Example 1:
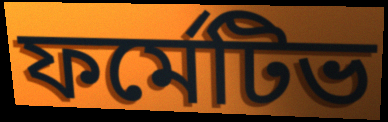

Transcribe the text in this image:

ফর্মেটিভ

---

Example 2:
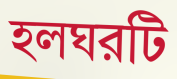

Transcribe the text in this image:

হলঘরটি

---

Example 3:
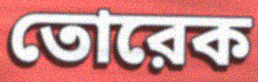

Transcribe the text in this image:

তোরেক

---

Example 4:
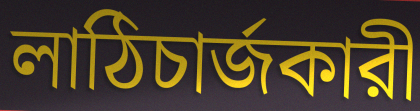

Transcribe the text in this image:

লাঠিচার্জকারী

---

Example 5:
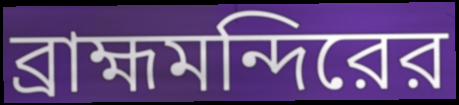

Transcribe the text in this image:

ব্রাহ্মমন্দিরের